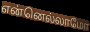
என்னெல்லாமோ